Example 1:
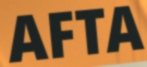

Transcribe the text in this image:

AFTA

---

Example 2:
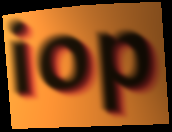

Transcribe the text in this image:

iop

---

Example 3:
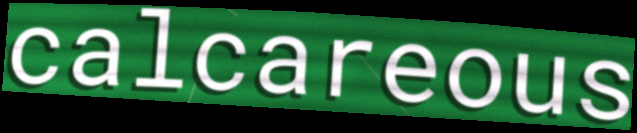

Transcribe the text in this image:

calcareous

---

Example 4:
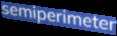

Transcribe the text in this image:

semiperimeter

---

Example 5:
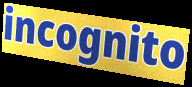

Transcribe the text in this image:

incognito